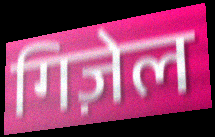
गिज़ेल